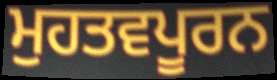
ਮੁਹਤਵਪੂਰਨ